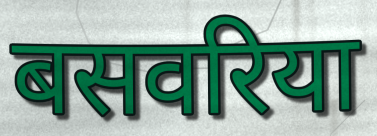
बसवरिया